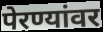
पेरण्यांवर